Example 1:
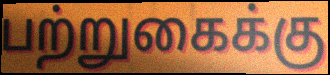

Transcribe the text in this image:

பற்றுகைக்கு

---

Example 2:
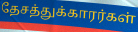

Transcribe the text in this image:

தேசத்துக்காரர்கள்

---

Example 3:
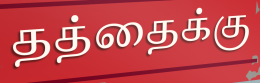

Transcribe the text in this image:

தத்தைக்கு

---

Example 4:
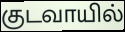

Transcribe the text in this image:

குடவாயில்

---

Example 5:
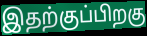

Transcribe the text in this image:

இதற்குப்பிறகு